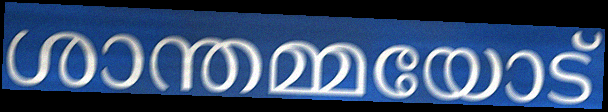
ശാന്തമ്മയോട്